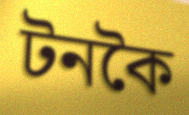
টনকৈ